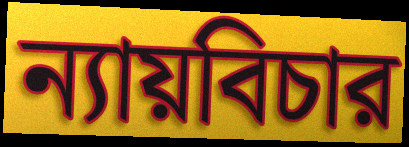
ন্যায়বিচার